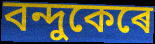
বন্দুকেৰে